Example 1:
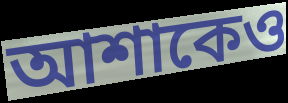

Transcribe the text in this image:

আশাকেও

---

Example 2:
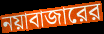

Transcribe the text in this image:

নয়াবাজারের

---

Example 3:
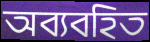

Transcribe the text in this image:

অব্যবহিত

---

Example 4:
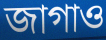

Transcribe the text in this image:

জাগাও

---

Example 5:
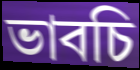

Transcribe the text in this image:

ভাবচি